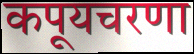
कपूयचरणा